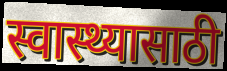
स्वास्थ्यासाठी